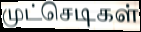
முட்செடிகள்